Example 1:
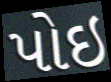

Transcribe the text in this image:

પોઇ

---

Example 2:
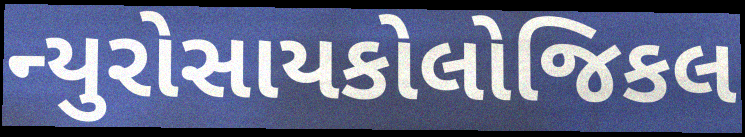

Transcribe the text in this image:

ન્યુરોસાયકોલોજિકલ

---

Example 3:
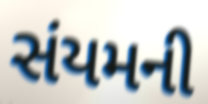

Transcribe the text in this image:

સંયમની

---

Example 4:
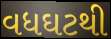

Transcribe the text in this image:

વધઘટથી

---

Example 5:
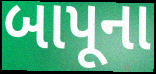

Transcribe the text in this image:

બાપૂના